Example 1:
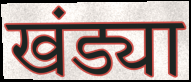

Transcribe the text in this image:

खंड्या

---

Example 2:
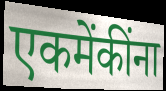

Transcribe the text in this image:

एकमेंकींना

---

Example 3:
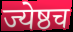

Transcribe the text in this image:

ज्येष्ठच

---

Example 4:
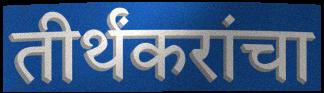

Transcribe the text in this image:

तीर्थंकरांचा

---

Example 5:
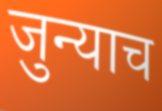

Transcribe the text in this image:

जुन्याच